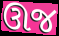
ઊજ